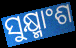
ସୁକ୍ଷ୍ମାଂଶ